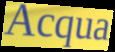
Acqua